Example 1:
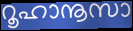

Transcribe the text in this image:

റൂഹാനൂസാ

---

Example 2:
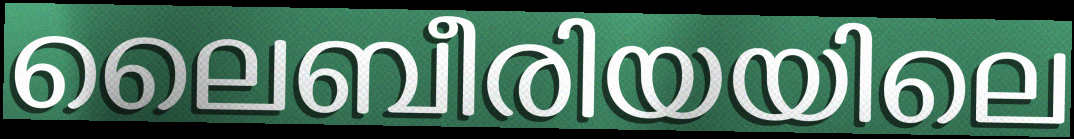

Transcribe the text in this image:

ലൈബീരിയയിലെ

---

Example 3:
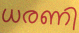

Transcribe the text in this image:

ധരണി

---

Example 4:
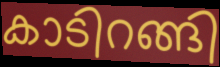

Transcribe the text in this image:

കാടിറങ്ങി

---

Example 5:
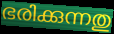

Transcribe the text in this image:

ഭരിക്കുന്നതു